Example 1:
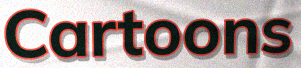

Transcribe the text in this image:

Cartoons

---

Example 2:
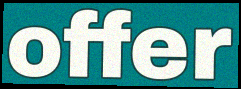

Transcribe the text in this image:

offer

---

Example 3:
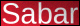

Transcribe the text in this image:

Sabar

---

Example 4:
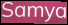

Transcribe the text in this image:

Samya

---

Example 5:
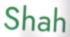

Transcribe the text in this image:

Shah